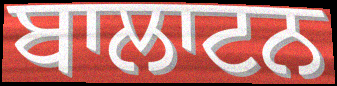
ਬਾਲਾਟਨ